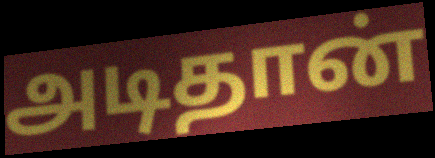
அடிதான்